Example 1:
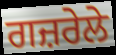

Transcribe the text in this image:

ਗਜ਼ਰੇਲੇ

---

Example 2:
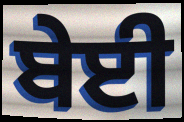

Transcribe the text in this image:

ਬੇਈ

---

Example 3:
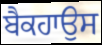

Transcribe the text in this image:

ਬੈਕਹਾਉਸ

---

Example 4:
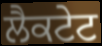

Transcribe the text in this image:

ਲੈਕਟੇਟ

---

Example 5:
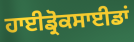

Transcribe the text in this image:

ਹਾਈਡ੍ਰੋਕਸਾਈਡਾਂ